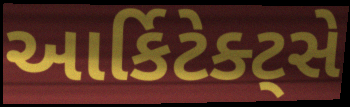
આર્કિટેક્ટ્સે